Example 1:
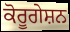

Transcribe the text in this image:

ਕੋਰੂਗੇਸ਼ਨ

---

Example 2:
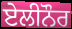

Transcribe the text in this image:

ਏਲੀਨੌਰ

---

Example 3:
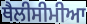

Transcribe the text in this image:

ਥੈਲੀਸੀਮੀਆ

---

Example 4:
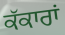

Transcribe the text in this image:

ਕੱਕਾਰਾਂ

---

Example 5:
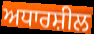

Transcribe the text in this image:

ਅਧਾਰਸ਼ੀਲ